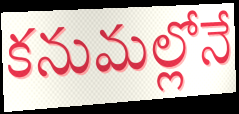
కనుమల్లోనే